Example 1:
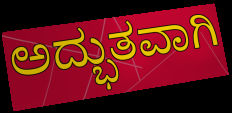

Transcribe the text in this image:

ಅದ್ಭುತವಾಗಿ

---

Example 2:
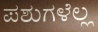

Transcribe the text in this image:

ಪಶುಗಳೆಲ್ಲ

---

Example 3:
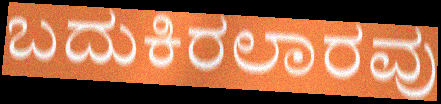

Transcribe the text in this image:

ಬದುಕಿರಲಾರವು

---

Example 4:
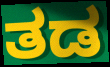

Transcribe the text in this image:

ತಡ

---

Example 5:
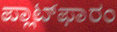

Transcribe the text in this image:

ಪ್ಲಾಟ್‌ಫಾರಂ